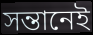
সন্তানেই